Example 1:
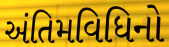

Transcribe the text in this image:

અંતિમવિધિનો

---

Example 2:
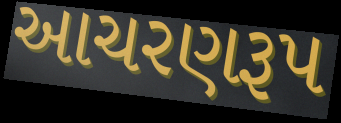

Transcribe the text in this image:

આચરણરૂપ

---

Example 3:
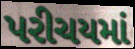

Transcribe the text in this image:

પરીચયમાં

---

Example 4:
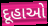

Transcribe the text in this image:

દૂહાઓ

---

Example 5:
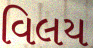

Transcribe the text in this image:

વિલય